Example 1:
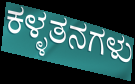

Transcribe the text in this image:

ಕಳ್ಳತನಗಳು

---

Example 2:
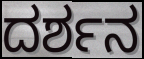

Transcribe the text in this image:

ದರ್ಶನ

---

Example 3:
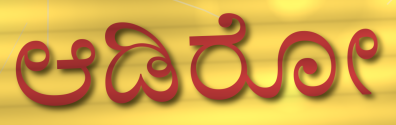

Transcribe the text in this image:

ಆಡಿರೋ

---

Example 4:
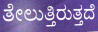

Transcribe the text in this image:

ತೇಲುತ್ತಿರುತ್ತದೆ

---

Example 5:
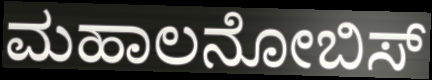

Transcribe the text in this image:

ಮಹಾಲನೋಬಿಸ್